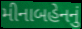
મીનાબહેનનું